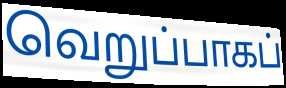
வெறுப்பாகப்